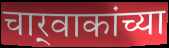
चार्वाकांच्या